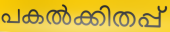
പകൽക്കിതപ്പ്